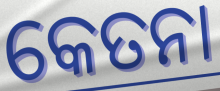
କେତନା